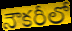
నౌకరీలో